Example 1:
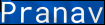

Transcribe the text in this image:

Pranav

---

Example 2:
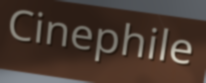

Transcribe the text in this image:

Cinephile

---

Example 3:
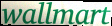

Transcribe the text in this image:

wallmart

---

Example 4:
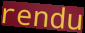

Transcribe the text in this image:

rendu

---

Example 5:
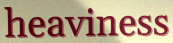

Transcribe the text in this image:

heaviness